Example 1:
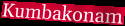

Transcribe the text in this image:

Kumbakonam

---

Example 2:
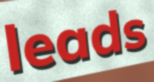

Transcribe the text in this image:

leads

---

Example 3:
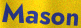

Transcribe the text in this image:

Mason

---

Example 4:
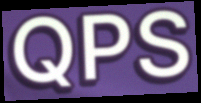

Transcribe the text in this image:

QPS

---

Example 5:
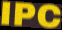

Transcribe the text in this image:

IPC